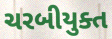
ચરબીયુક્ત